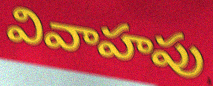
వివాహపు